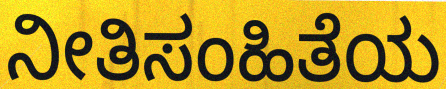
ನೀತಿಸಂಹಿತೆಯ